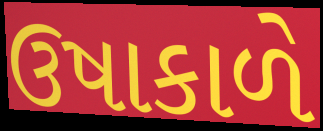
ઉષાકાળે